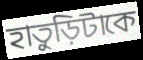
হাতুড়িটাকে